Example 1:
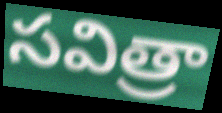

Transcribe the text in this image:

సవిత్రా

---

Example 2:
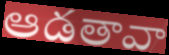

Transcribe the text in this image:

ఆడతావా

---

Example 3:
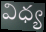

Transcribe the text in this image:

విధ్య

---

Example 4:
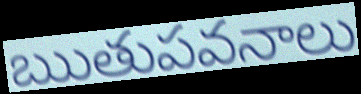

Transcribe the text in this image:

ఋతుపవనాలు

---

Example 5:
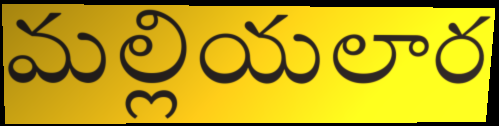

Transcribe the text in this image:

మల్లియలార